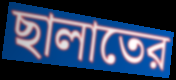
ছালাতের